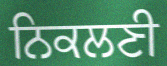
ਨਿਕਲਣੀ